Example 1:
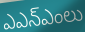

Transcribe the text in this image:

ఎఎన్ఎంలు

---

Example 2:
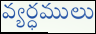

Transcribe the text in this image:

వ్యర్ధములు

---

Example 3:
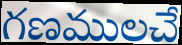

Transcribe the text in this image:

గణములచే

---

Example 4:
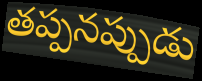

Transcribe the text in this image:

తప్పనప్పుడు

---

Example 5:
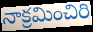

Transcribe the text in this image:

నాక్రమించిరి